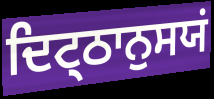
ਦਿਟ੍ਠਾਨੁਸਯਂ